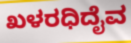
ಖಳರಧಿದೈವ